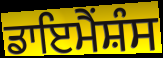
ਡਾਇਮੈਂਸ਼ੰਸ